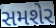
સમશેર